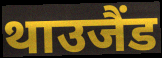
थाउजैंड